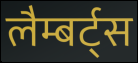
लैम्बर्ट्स